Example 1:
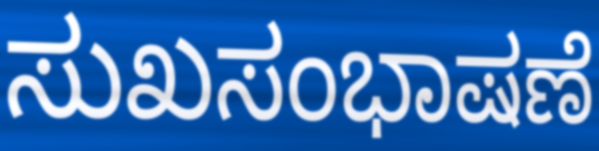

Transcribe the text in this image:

ಸುಖಸಂಭಾಷಣೆ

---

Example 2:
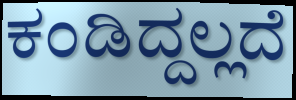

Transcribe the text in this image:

ಕಂಡಿದ್ದಲ್ಲದೆ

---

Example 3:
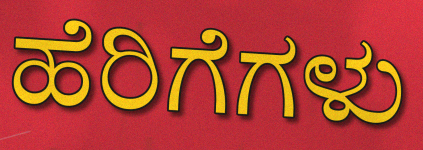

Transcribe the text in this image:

ಹೆರಿಗೆಗಳು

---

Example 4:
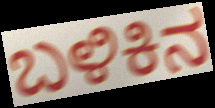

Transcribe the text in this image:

ಬಳಿಕಿನ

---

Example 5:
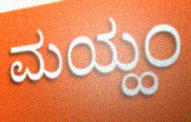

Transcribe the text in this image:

ಮಯ್ಹಂ